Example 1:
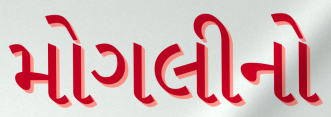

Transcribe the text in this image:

મોગલીનો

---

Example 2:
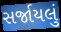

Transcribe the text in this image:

સર્જાયલું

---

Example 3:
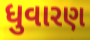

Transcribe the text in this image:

ધુવારણ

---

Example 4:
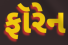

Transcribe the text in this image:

ફૉરેન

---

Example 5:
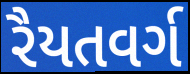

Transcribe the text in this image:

રૈયતવર્ગ